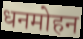
धनमोहन